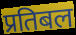
प्रतिबल